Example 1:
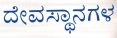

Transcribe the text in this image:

ದೇವಸ್ಥಾನಗಳ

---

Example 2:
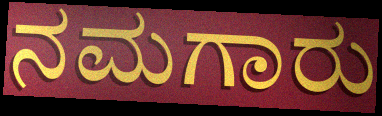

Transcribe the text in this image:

ನಮಗಾರು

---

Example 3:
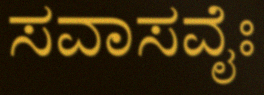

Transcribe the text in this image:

ಸವಾಸವೈಃ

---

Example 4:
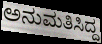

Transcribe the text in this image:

ಅನುಮತಿಸಿದ್ದ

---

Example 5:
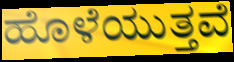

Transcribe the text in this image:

ಹೊಳೆಯುತ್ತವೆ